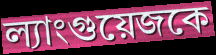
ল্যাংগুয়েজকে